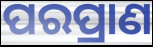
ପରପ୍ରାଣ